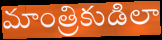
మాంత్రికుడిలా